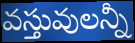
వస్తువులన్నీ